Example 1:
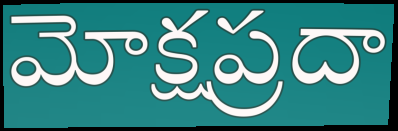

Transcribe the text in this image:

మోక్షప్రదా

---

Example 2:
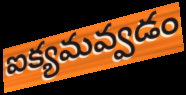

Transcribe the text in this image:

ఐక్యమవ్వడం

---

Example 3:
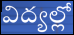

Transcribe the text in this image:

విద్యల్లో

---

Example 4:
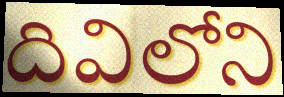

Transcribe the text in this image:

దివిలోని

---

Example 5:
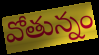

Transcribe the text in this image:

వోతున్నం